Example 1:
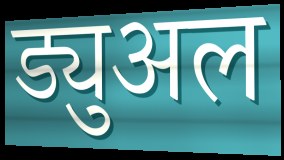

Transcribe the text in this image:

ड्युअल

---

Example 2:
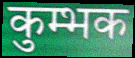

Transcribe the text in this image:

कुम्भक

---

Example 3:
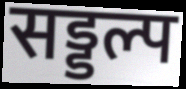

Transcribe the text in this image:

सड्डल्प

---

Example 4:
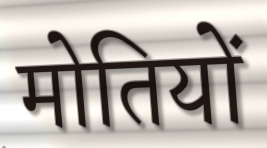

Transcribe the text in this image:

मोतियों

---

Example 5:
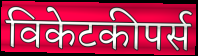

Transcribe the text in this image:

विकेटकीपर्स